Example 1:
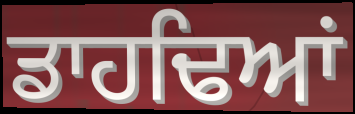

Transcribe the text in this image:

ਡਾਹਢਿਆਂ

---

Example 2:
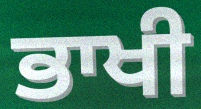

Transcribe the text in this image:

ਭਾਖੀ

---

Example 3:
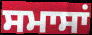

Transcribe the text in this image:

ਸਮਾਸਾਂ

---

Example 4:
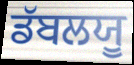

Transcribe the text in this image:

ਡੱਬਲਯੂ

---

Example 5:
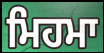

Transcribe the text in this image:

ਮਿਹਮਾ